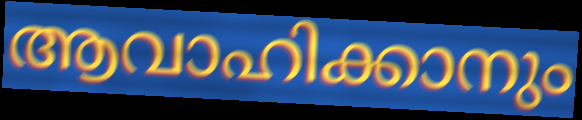
ആവാഹിക്കാനും